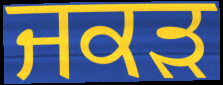
ਜਕੜ